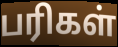
பரிகள்